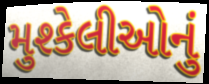
મુશ્કેલીઓનું